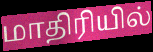
மாதிரியில்